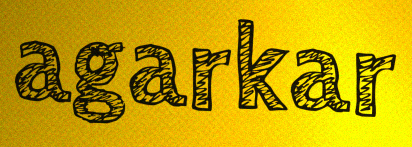
agarkar